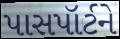
પાસપૉર્ટને